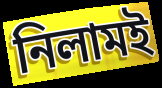
নিলামই